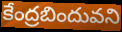
కేంద్రబిందువని